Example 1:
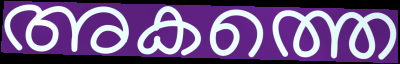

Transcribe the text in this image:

അകത്തെ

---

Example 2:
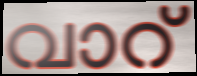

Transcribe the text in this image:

വാറ്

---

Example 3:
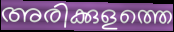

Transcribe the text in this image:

അരിക്കുളത്തെ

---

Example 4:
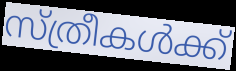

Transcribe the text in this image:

സ്ത്രീകൾക്ക്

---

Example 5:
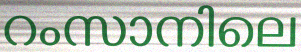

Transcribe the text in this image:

റംസാനിലെ